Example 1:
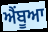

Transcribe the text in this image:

ਐਂਬੂਆ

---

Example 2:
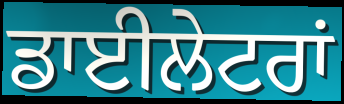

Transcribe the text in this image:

ਡਾਈਲੇਟਰਾਂ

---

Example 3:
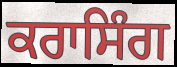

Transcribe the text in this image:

ਕਰਾਸਿੰਗ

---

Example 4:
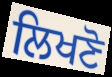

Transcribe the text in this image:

ਲਿਖਣੋ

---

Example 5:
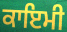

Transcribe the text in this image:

ਕਾਇਮੀ